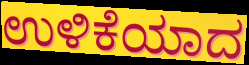
ಉಳಿಕೆಯಾದ